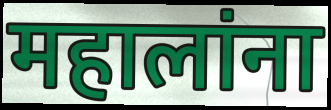
महालांना